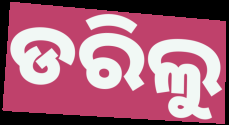
ଡରିଲୁ